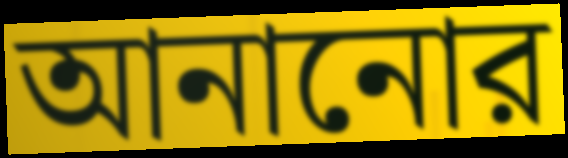
আনানোর